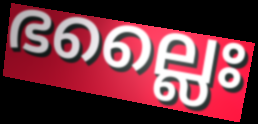
ഭല്ലൈഃ